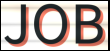
JOB